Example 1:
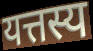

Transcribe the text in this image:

यत्तस्य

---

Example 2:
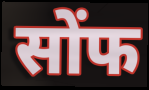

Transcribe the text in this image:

सोंफ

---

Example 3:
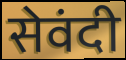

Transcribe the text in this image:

सेवंदी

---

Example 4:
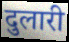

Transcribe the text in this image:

दुलारी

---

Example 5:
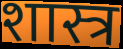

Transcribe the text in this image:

शास्त्र